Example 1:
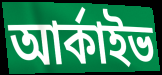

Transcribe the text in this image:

আৰ্কাইভ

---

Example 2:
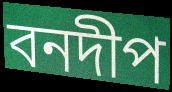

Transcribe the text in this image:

বনদীপ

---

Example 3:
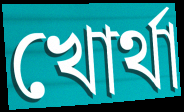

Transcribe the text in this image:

খোৰ্থা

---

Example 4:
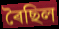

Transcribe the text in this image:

ৰৈছিল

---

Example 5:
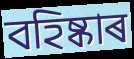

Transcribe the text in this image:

বহিষ্কাৰ